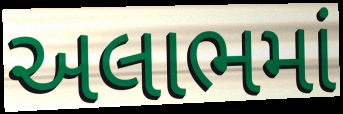
અલાભમાં